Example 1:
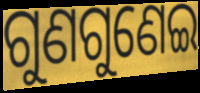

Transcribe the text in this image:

ଗୁଣଗୁଣେଇ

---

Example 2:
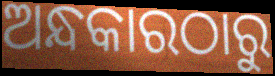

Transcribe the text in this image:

ଅନ୍ଧକାରଠାରୁ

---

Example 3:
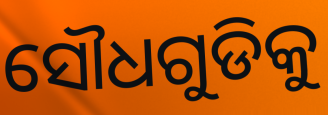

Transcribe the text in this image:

ସୌଧଗୁଡିକୁ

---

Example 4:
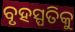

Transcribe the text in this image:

ବୃହସ୍ପତିକୁ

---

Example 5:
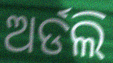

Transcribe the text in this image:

ଅର୍ଡଲି